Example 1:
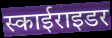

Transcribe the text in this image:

स्काईराइडर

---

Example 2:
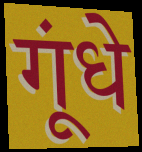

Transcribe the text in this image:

गूंधे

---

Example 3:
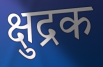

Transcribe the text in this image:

क्षुद्रक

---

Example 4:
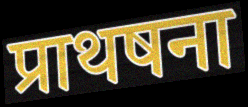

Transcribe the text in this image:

प्राथषना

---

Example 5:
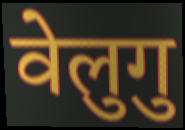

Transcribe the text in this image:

वेलुगु